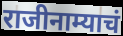
राजीनाम्याचं